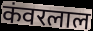
कंवरलाल